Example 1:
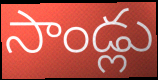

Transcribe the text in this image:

సాండ్లు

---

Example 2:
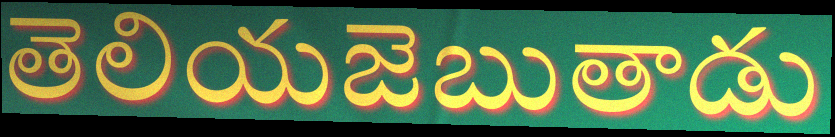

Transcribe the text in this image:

తెలియజెబుతాడు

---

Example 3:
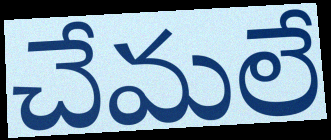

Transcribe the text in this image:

చేమలే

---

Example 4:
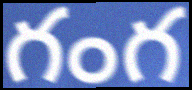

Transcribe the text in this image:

గంగ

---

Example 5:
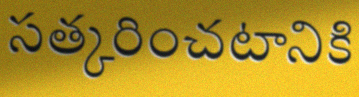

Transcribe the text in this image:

సత్కరించటానికి